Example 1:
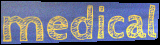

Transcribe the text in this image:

medical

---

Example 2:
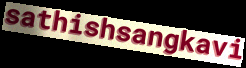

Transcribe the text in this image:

sathishsangkavi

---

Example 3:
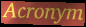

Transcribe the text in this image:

Acronym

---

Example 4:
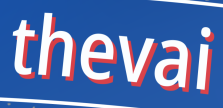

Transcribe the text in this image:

thevai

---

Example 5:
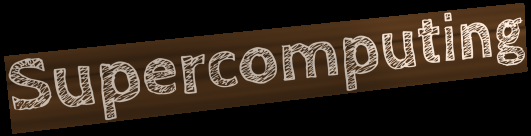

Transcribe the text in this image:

Supercomputing